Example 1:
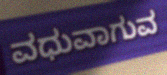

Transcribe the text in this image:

ವಧುವಾಗುವ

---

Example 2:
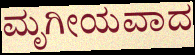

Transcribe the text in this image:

ಮೃಗೀಯವಾದ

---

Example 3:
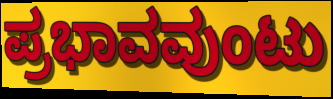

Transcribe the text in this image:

ಪ್ರಭಾವವುಂಟು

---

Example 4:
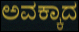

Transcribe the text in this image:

ಅವಕ್ಕಾದ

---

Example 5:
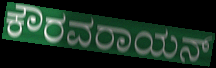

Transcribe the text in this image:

ಕೌರವರಾಯನ್